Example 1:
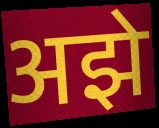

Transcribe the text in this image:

अझे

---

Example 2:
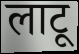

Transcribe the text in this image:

लाटू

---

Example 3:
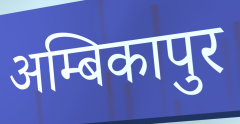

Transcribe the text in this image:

अम्बिकापुर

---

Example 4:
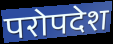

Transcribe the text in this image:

परोपदेश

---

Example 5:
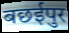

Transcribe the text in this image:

बछईपुर